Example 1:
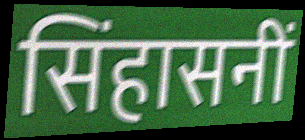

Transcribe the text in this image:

सिंहासनीं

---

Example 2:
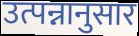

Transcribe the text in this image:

उत्पन्नानुसार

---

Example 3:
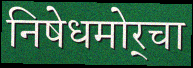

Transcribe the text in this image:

निषेधमोर्चा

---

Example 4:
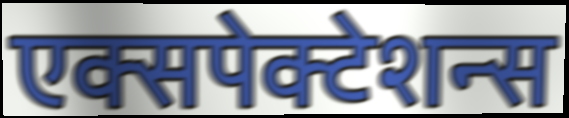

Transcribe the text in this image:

एक्सपेक्टेशन्स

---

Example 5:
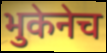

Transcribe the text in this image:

भुकेनेच